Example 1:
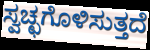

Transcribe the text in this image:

ಸ್ವಚ್ಛಗೊಳಿಸುತ್ತದೆ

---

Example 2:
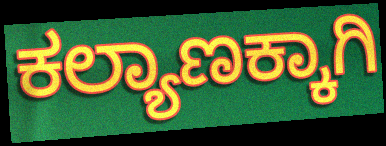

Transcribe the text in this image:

ಕಲ್ಯಾಣಕ್ಕಾಗಿ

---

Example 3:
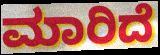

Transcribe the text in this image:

ಮಾರಿದೆ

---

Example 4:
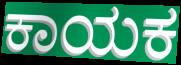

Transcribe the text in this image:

ಕಾಯಕ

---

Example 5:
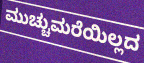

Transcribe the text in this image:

ಮುಚ್ಚುಮರೆಯಿಲ್ಲದ